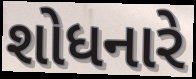
શોધનારે